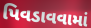
પિવડાવવામાં